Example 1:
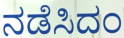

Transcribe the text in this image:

ನಡೆಸಿದಂ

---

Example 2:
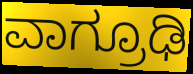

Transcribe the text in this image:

ವಾಗ್ರೂಢಿ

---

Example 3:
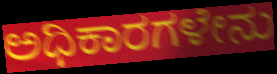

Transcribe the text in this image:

ಅಧಿಕಾರಗಳೇನು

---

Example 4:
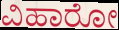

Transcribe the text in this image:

ವಿಹಾರೋ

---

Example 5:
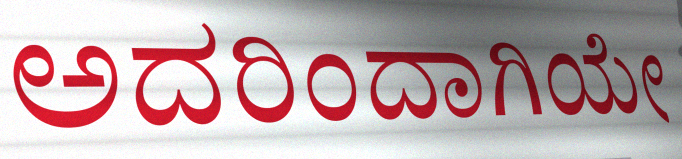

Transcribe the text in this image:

ಅದರಿಂದಾಗಿಯೇ